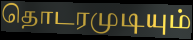
தொடரமுடியும்